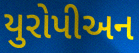
યુરોપીઅન